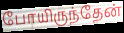
போயிருந்தேன்